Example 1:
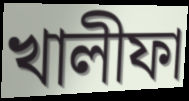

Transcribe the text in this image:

খালীফা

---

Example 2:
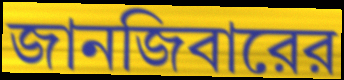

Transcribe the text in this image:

জানজিবারের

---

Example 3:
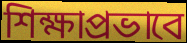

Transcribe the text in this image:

শিক্ষাপ্রভাবে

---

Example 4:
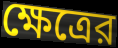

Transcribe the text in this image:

ক্ষেত্রের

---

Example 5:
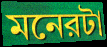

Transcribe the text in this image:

মনেরটা